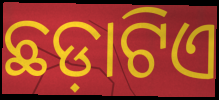
ଛଡ଼ାଟିଏ